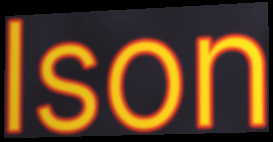
Ison